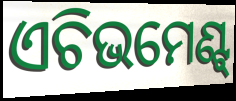
ଏଚିଭମେଣ୍ଟ୍